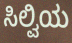
ಸಿಲ್ವಿಯ